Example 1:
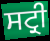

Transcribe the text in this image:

ਸਟ੍ਰੀ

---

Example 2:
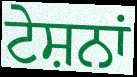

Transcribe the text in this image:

ਟੇਸ਼ਨਾਂ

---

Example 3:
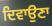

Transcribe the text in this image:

ਦਿਵਾਉਣਾ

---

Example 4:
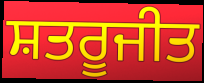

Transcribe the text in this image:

ਸ਼ਤਰੂਜੀਤ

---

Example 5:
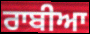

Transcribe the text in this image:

ਰਾਬੀਆ